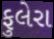
ફુલેરા